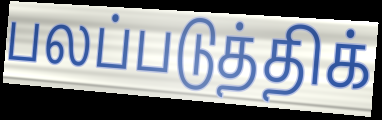
பலப்படுத்திக்